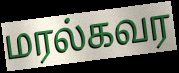
மரல்கவர